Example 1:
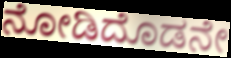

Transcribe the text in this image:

ನೋಡಿದೊಡನೇ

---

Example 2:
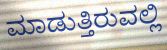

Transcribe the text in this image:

ಮಾಡುತ್ತಿರುವಲ್ಲಿ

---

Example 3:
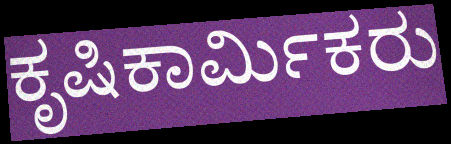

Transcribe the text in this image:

ಕೃಷಿಕಾರ್ಮಿಕರು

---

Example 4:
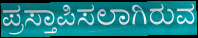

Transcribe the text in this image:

ಪ್ರಸ್ತಾಪಿಸಲಾಗಿರುವ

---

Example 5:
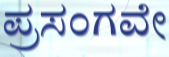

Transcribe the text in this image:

ಪ್ರಸಂಗವೇ